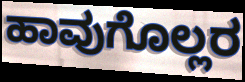
ಹಾವುಗೊಲ್ಲರ